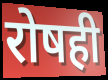
रोषही